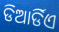
ଡିଆର୍ଡିଏ